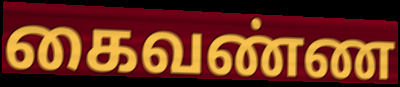
கைவண்ண